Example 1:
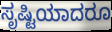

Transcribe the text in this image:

ಸೃಷ್ಟಿಯಾದರೂ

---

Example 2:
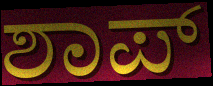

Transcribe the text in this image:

ಶಾಪ್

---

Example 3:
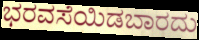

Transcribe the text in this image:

ಭರವಸೆಯಿಡಬಾರದು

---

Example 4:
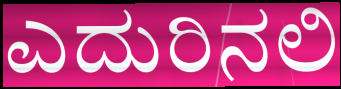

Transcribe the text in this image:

ಎದುರಿನಲಿ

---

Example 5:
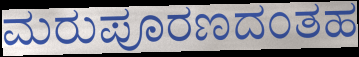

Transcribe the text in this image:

ಮರುಪೂರಣದಂತಹ